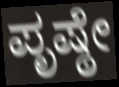
ಪೃಷ್ಠೇ